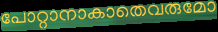
പോറ്റാനാകാതെവരുമോ